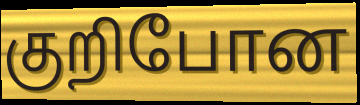
குறிபோன